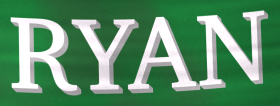
RYAN